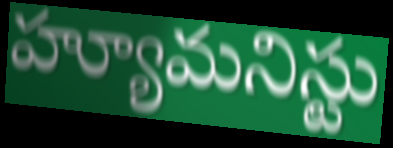
హ్యూమనిస్టు